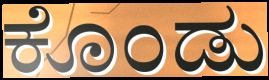
ಕೊಂಡು